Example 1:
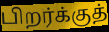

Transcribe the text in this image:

பிறர்க்குத்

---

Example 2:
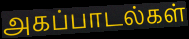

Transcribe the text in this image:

அகப்பாடல்கள்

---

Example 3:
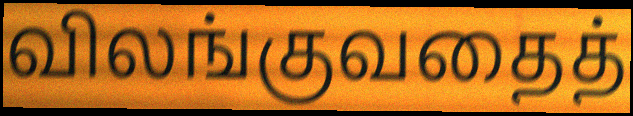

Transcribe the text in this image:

விலங்குவதைத்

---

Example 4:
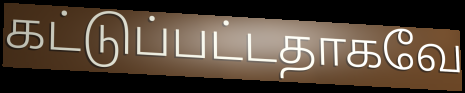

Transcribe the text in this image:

கட்டுப்பட்டதாகவே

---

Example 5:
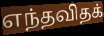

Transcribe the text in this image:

எந்தவிதக்